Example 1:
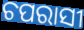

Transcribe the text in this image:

ଚପରାସୀ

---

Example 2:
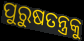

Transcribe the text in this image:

ପୁରୁଷତନ୍ତ୍ରକୁ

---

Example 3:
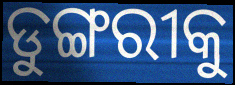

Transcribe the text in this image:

ଡୁଙ୍ଗରୀକୁ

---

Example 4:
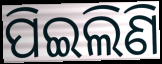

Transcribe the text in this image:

ପିଇଲିଣି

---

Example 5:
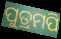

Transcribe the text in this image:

ପୁତ୍ରମପି